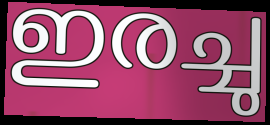
ഇരച്ചു